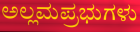
ಅಲ್ಲಮಪ್ರಭುಗಳು